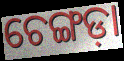
ଚେଙ୍ଗଡ଼ା